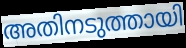
അതിനടുത്തായി